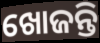
ଖୋଜନ୍ତି